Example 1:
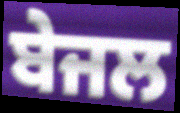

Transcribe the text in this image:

ਬੇਜਲ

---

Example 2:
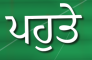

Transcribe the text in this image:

ਪਹੁਤੇ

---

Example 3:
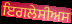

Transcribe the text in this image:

ਇਗਲੇਸੀਅਸ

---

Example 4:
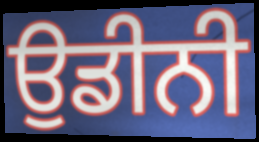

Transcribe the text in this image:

ਉਡੀਨੀ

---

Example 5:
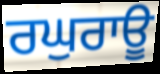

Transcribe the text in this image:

ਰਘੁਰਾਊ